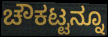
ಚೌಕಟ್ಟನ್ನೂ